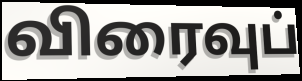
விரைவுப்